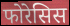
फोरेसिस